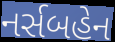
નર્સબહેન